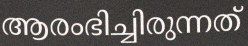
ആരംഭിച്ചിരുന്നത്